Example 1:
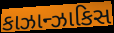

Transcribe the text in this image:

કાઝાન્ઝાકિસ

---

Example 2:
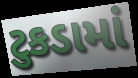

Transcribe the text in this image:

ટુકડામાં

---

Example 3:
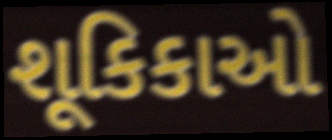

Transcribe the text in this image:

શૂકિકાઓ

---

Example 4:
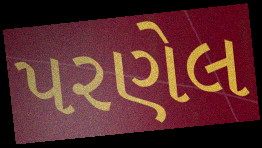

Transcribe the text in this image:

પરણેલ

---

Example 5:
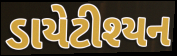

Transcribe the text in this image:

ડાયેટીશ્યન